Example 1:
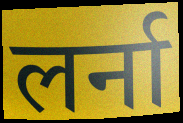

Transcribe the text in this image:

लर्ना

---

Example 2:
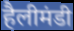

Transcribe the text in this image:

हैलीमंडी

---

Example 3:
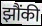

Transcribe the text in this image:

झौंकी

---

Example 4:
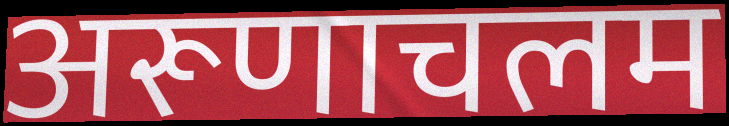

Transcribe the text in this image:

अरूणाचलम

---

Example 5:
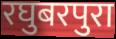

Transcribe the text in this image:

रघुबरपुरा